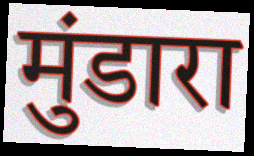
मुंडारा